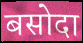
बसोदा